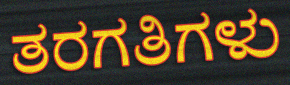
ತರಗತಿಗಳು